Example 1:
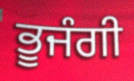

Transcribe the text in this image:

ਭੂਜੰਗੀ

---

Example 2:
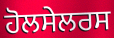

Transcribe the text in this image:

ਹੋਲਸੇਲਰਸ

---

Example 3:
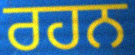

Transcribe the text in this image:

ਰਹਨ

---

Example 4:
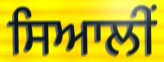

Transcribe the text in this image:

ਸਿਆਲੀਂ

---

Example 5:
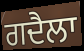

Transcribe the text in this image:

ਗਦੈਲਾ